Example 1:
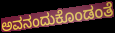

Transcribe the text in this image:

ಅವನಂದುಕೊಂಡಂತೆ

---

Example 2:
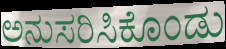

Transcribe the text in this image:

ಅನುಸರಿಸಿಕೊಂಡು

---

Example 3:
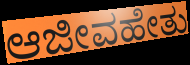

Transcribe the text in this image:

ಆಜೀವಹೇತು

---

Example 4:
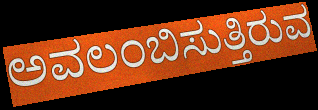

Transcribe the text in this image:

ಅವಲಂಬಿಸುತ್ತಿರುವ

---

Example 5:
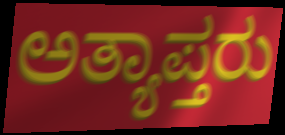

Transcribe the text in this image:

ಅತ್ಯಾಪ್ತರು